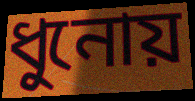
ধুনোয়